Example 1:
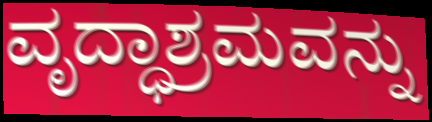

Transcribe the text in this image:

ವೃದ್ಧಾಶ್ರಮವನ್ನು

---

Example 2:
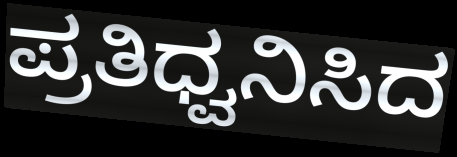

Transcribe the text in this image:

ಪ್ರತಿಧ್ವನಿಸಿದ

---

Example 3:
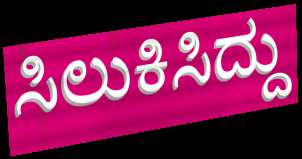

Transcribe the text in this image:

ಸಿಲುಕಿಸಿದ್ದು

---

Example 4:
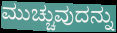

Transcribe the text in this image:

ಮುಚ್ಚುವುದನ್ನು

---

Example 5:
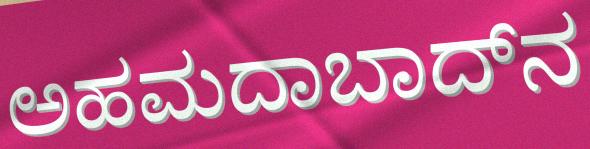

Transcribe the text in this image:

ಅಹಮದಾಬಾದ್‌ನ